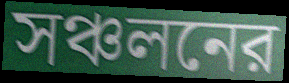
সঞ্চলনের